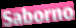
Saborno